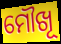
ମୌଖୂ